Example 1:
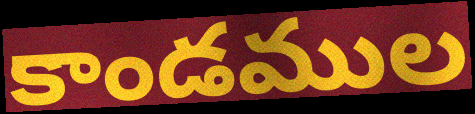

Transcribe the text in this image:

కాండముల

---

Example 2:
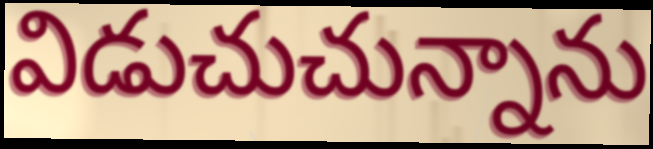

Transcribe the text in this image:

విడుచుచున్నాను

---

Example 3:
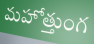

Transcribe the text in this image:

మహోత్తుంగ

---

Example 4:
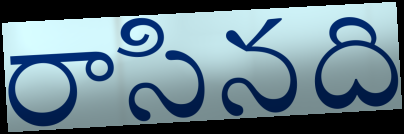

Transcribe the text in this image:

రాసినది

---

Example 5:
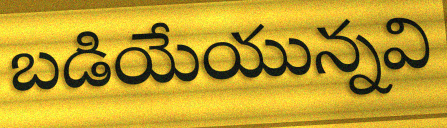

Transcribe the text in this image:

బడియేయున్నవి